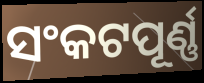
ସଂକଟପୂର୍ଣ୍ଣ